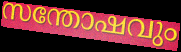
സന്തോഷവും